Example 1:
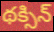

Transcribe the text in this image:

థక్సిన్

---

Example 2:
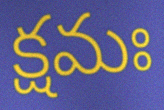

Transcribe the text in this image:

క్షమః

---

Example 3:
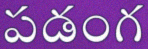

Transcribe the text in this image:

పడంగ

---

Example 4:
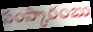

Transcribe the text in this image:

సంస్కారంబు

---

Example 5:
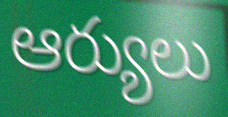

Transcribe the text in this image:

ఆర్యులు